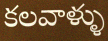
కలవాళ్ళు